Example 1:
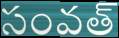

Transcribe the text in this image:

సంవత్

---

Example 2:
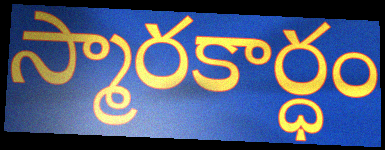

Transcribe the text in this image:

స్మారకార్ధం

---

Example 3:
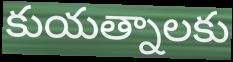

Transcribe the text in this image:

కుయత్నాలకు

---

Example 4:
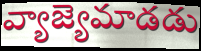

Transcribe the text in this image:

వ్యాజ్యెమాడడు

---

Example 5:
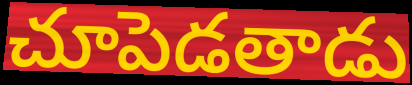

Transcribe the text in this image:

చూపెడతాడు